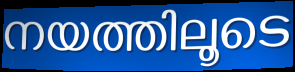
നയത്തിലൂടെ